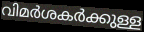
വിമർശകർക്കുള്ള